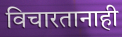
विचारतानाही